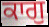
ਕਾਗੁ